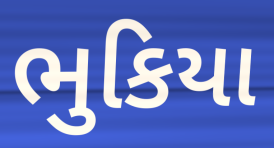
ભુકિયા